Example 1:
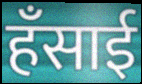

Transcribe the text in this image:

हँसाई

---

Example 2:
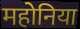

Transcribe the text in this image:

महोनिया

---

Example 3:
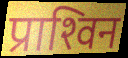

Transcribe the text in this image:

प्राश्विन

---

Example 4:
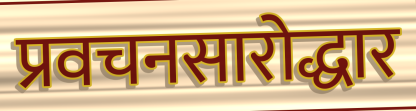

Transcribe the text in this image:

प्रवचनसारोद्धार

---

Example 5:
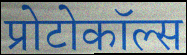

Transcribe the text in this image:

प्रोटोकॉल्स